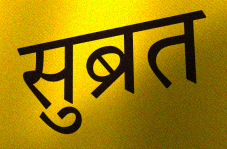
सुब्रत